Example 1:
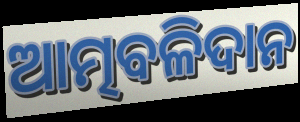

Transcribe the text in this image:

ଆତ୍ମବଳିଦାନ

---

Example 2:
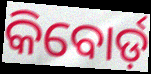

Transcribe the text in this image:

କିବୋର୍ଡ଼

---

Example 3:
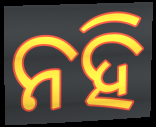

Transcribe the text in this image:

ନହି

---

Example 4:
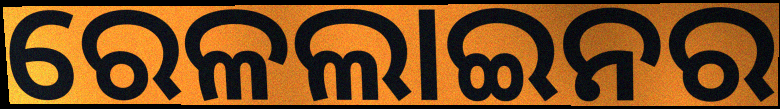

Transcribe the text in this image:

ରେଳଲାଇନର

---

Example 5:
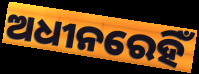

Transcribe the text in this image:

ଅଧୀନରେହିଁ